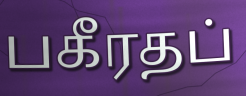
பகீரதப்